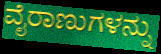
ವೈರಾಣುಗಳನ್ನು